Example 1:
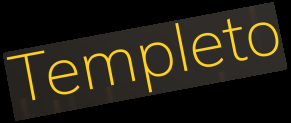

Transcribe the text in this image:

Templeto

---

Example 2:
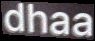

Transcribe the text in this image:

dhaa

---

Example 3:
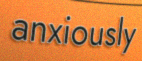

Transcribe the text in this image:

anxiously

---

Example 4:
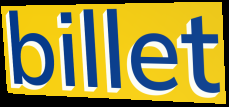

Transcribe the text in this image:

billet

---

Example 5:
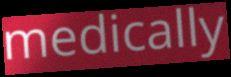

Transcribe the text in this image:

medically